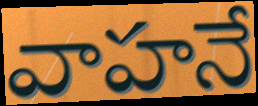
వాహనే